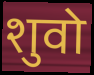
शुवो